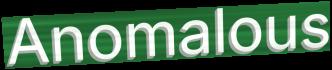
Anomalous